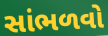
સાંભળવો